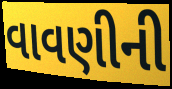
વાવણીની